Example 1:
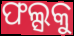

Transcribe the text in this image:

ଫଲ୍ସକୁ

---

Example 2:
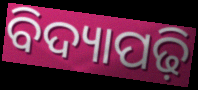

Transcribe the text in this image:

ବିଦ୍ୟାପଢ଼ି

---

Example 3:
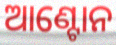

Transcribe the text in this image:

ଆଣ୍ଟୋନ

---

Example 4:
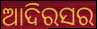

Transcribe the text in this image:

ଆଦିରସର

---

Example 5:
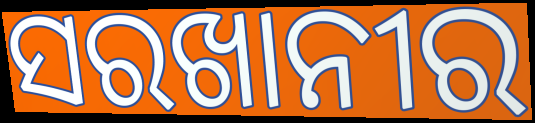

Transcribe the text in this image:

ସରଖାନୀର